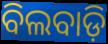
ବିଲବାଡ଼ି